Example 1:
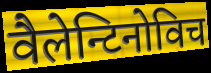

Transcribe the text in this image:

वैलेन्टिनोविच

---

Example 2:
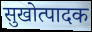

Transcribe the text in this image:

सुखोत्पादक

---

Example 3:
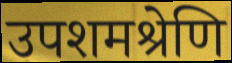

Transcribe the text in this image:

उपशमश्रेणि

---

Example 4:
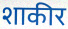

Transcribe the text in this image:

शाकीर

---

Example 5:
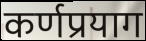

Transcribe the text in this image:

कर्णप्रयाग